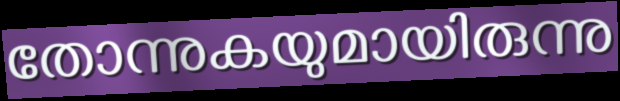
തോന്നുകയുമായിരുന്നു